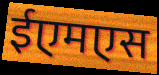
ईएमएस